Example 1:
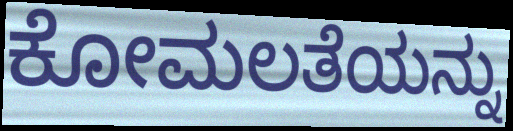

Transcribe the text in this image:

ಕೋಮಲತೆಯನ್ನು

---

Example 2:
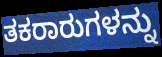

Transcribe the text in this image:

ತಕರಾರುಗಳನ್ನು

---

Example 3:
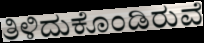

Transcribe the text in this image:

ತಿಳಿದುಕೊಂಡಿರುವೆ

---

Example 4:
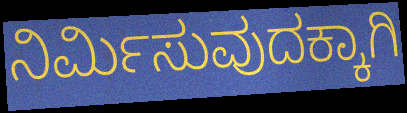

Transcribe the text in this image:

ನಿರ್ಮಿಸುವುದಕ್ಕಾಗಿ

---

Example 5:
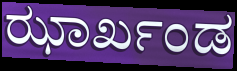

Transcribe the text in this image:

ಝಾರ್ಖಂಡ